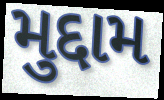
મુદ્દામ